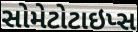
સોમેટોટાઇપ્સ